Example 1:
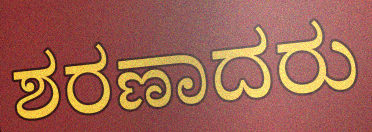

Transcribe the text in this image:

ಶರಣಾದರು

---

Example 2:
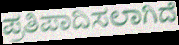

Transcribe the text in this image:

ಪ್ರತಿಪಾದಿಸಲಾಗಿದೆ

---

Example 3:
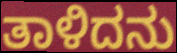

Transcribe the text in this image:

ತಾಳಿದನು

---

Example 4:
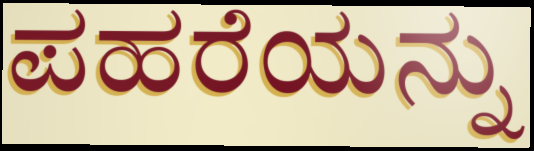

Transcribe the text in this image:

ಪಹರೆಯನ್ನು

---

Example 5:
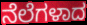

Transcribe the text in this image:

ನೆಲೆಗಳಾದ